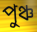
পুঞ্চ